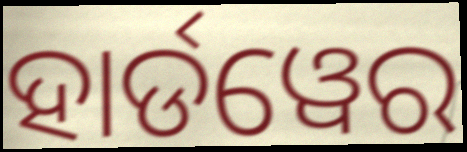
ହାର୍ଡୱେର